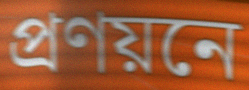
প্ৰণয়নে